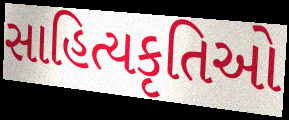
સાહિત્યકૃતિઓ